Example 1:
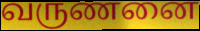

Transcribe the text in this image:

வருணனை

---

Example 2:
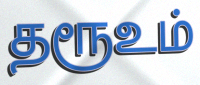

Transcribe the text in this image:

தரூஉம்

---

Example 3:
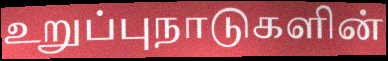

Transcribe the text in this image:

உறுப்புநாடுகளின்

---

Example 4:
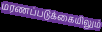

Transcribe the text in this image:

மரணப்படுக்கையிலும்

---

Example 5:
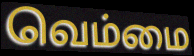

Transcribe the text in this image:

வெம்மை